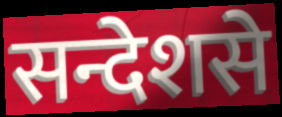
सन्देशसे